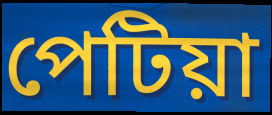
পেটিয়া